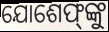
ଯୋଶେଫ୍‌ଙ୍କୁ